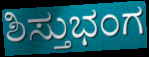
ಶಿಸ್ತುಭಂಗ